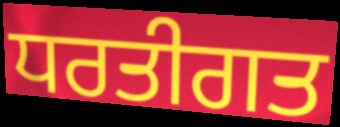
ਧਰਤੀਗਤ